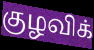
குழவிக்